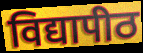
विद्यापीठ